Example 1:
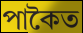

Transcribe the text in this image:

পাকৈত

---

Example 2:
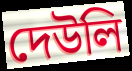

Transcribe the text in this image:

দেউলি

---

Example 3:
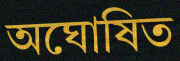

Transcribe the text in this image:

অঘোষিত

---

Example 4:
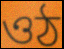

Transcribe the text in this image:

ওঠ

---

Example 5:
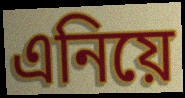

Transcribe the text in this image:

এনিয়ে